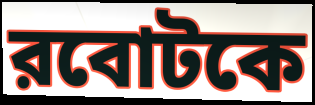
রবোটকে